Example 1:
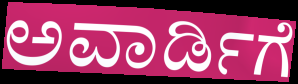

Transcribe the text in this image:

ಅವಾರ್ಡಿಗೆ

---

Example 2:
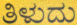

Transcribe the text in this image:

ತಿಳುದು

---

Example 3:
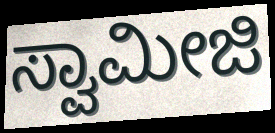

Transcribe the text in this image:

ಸ್ವಾಮೀಜಿ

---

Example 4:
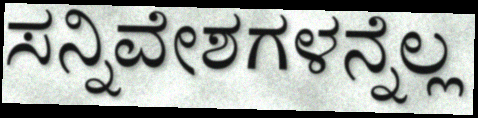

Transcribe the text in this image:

ಸನ್ನಿವೇಶಗಳನ್ನೆಲ್ಲ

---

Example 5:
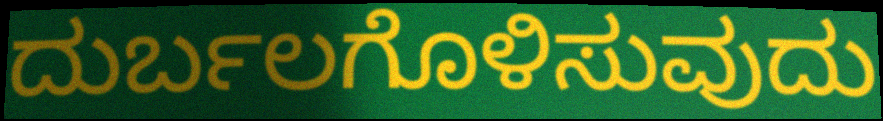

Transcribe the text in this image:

ದುರ್ಬಲಗೊಳಿಸುವುದು